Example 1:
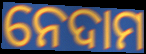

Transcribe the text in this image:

ନେଦାମ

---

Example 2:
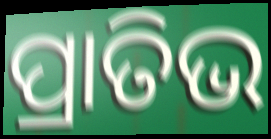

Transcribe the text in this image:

ପ୍ରାତିଭ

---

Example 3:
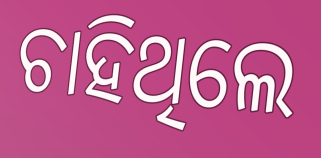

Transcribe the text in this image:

ଚାହିଥିଲେ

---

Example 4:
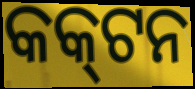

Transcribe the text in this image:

କକ୍‌ଟନ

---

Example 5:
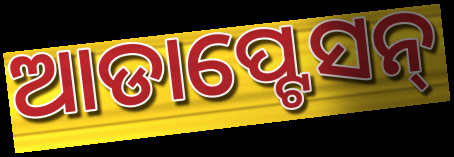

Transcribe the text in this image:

ଆଡାପ୍ଟେସନ୍